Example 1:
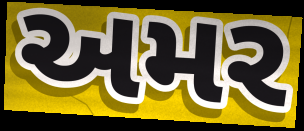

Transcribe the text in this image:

અમર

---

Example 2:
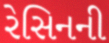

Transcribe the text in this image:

રેસિનની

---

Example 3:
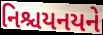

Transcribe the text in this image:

નિશ્ચયનયને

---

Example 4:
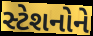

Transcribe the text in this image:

સ્ટેશનોને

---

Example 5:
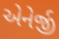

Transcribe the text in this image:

એનેર્જી